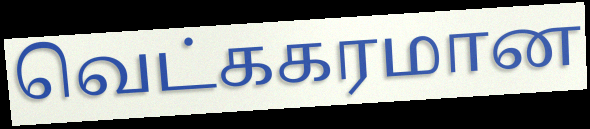
வெட்ககரமான